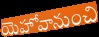
యెహోవానుంచి